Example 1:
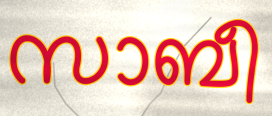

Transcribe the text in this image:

സാബീ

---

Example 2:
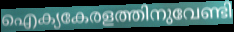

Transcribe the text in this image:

ഐക്യകേരളത്തിനുവേണ്ടി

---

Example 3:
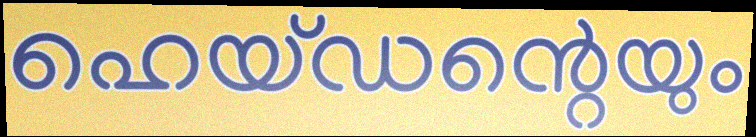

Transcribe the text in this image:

ഹെയ്ഡന്റെയും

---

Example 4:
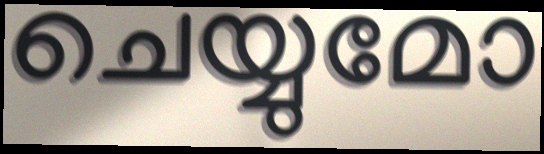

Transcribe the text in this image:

ചെയ്യുമോ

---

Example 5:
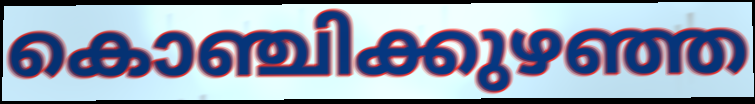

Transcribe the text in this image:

കൊഞ്ചിക്കുഴഞ്ഞ